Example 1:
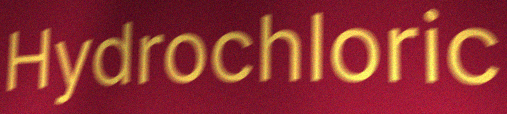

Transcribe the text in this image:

Hydrochloric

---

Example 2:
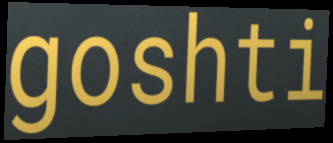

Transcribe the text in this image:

goshti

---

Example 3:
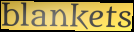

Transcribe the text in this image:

blankets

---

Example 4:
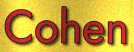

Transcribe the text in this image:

Cohen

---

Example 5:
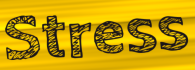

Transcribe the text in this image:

Stress